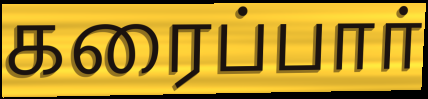
கரைப்பார்